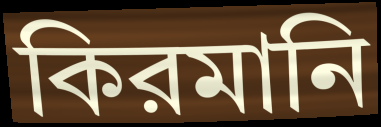
কিরমানি